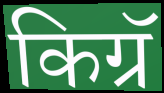
किग्रॅ